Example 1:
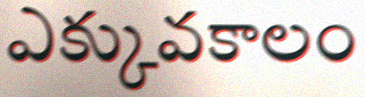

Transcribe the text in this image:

ఎక్కువకాలం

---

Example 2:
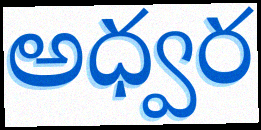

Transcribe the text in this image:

అధ్వర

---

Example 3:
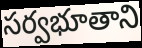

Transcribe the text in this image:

సర్వభూతాని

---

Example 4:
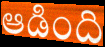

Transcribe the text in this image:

ఆడింది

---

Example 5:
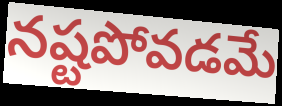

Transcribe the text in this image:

నష్టపోవడమే